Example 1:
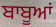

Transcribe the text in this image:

ਬਾਬੂਆਂ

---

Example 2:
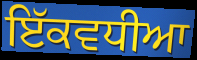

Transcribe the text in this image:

ਇੱਕਵਧੀਆ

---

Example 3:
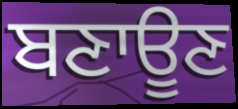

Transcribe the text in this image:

ਬਣਾਊਣ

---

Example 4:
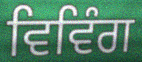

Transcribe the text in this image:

ਵਿਵਿੰਗ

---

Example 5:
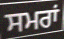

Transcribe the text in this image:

ਸਮਰਾਂ